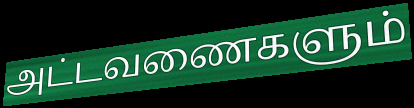
அட்டவணைகளும்